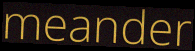
meander